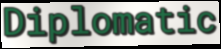
Diplomatic